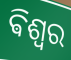
ଵିଶ୍ୱର